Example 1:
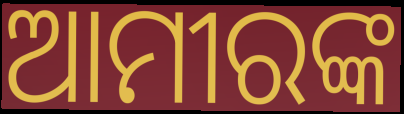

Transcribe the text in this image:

ଆମୀରଙ୍କ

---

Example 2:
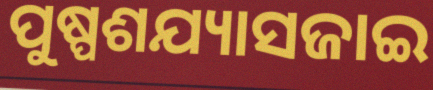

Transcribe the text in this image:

ପୁଷ୍ପଶଯ୍ୟାସଜାଇ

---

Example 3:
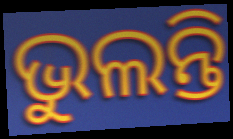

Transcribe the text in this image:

ଭୁଲନ୍ତି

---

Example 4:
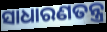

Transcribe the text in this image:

ସାଧାରଣତନ୍ତ୍ର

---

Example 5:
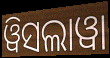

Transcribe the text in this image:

ୱିସଲାୱା